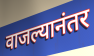
वाजल्यानंतर